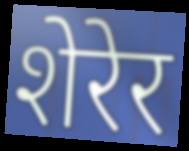
शेरेर